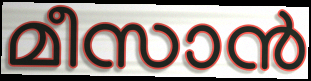
മീസാൻ